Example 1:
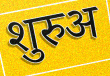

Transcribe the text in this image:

शुरुअ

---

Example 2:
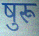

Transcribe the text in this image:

षुरू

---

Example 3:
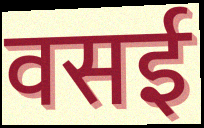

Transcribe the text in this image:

वसई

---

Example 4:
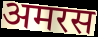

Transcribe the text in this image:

अमरस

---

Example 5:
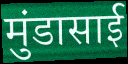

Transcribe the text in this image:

मुंडासाई